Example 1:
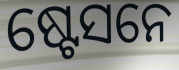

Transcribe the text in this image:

ଷ୍ଟେସନେ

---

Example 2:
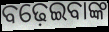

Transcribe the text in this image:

ବଢ଼େଇବାଙ୍କ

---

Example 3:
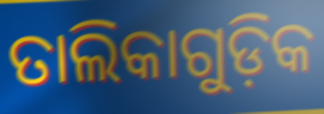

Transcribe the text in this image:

ତାଲିକାଗୁଡ଼ିକ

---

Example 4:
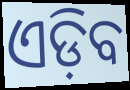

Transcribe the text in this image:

ଏଡ଼ିବ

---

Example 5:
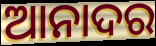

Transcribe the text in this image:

ଆନାଦର